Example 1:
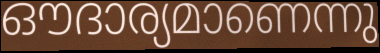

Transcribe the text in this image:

ഔദാര്യമാണെന്നു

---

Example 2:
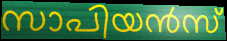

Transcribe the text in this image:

സാപിയൻസ്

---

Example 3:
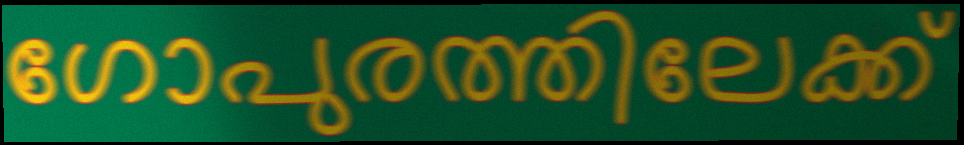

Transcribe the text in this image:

ഗോപുരത്തിലേക്ക്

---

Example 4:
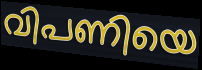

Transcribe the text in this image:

വിപണിയെ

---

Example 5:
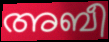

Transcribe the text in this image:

അബീ